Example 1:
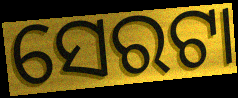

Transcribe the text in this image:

ସେରଟା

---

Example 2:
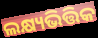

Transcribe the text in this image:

ଲକ୍ଷ୍ୟଭିତ୍ତିକ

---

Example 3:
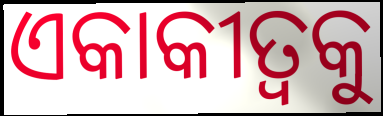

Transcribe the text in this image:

ଏକାକୀତ୍ଵକୁ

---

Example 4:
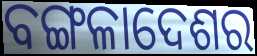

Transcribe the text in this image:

ବଙ୍ଗଳାଦେଶର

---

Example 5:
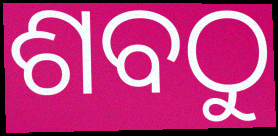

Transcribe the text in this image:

ଶବଠୁ